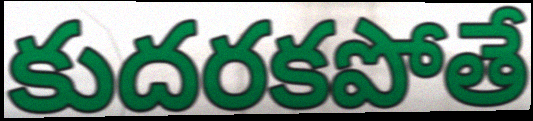
కుదరకపోతే